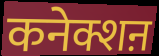
कनेक्शऩ